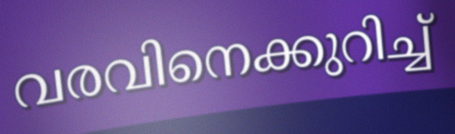
വരവിനെക്കുറിച്ച്